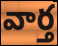
వార్త